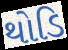
થોડિ